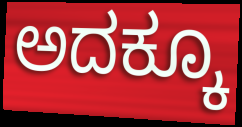
ಅದಕ್ಕೂ